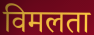
विमलता